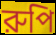
রুপি